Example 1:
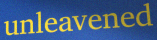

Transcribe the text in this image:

unleavened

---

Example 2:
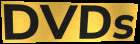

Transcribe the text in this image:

DVDs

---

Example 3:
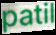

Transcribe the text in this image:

patil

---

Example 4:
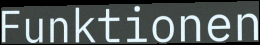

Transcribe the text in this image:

Funktionen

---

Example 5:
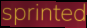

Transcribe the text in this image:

sprinted